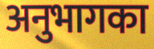
अनुभागका